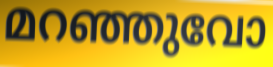
മറഞ്ഞുവോ